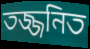
তজ্জনিত